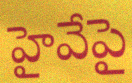
హైవేపై